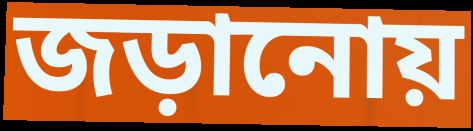
জড়ানোয়